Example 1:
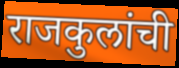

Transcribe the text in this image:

राजकुलांची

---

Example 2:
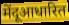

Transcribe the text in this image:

मेंदूआधारित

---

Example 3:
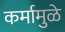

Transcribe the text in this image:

कर्मामुळे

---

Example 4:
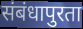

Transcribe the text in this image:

संबंधापुरता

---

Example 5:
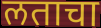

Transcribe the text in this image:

लताचा